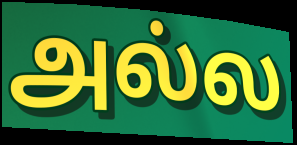
அல்ல